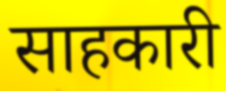
साहकारी